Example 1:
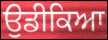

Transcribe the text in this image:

ਉਡੀਕਿਆ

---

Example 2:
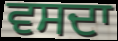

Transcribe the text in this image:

ਵਸਦਾ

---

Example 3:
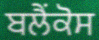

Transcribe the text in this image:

ਬਲੈਂਕੋਸ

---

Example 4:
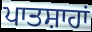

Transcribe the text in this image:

ਪਾਤਸ਼ਾਹਾਂ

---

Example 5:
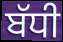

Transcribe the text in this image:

ਬੱਧੀ